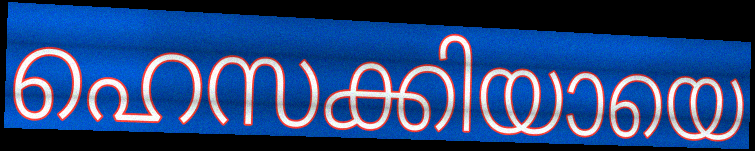
ഹെസക്കിയായെ